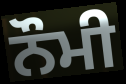
ਨੌਮੀ